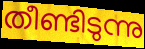
തീണ്ടിടുന്നു